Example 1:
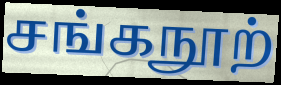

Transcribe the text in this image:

சங்கநூற்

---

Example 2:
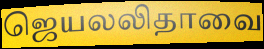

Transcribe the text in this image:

ஜெயலலிதாவை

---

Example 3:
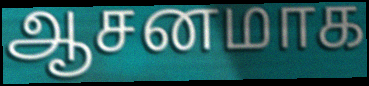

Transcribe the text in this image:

ஆசனமாக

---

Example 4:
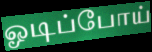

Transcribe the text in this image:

ஓடிப்போய்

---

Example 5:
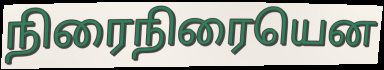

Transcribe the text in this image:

நிரைநிரையென